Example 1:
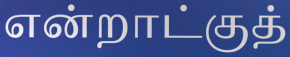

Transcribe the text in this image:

என்றாட்குத்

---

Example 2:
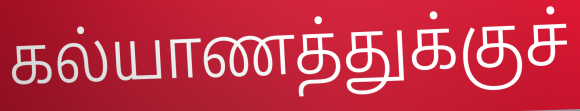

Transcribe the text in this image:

கல்யாணத்துக்குச்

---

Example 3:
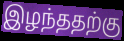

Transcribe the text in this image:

இழந்ததற்கு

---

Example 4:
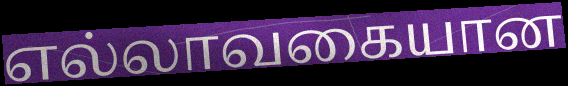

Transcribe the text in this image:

எல்லாவகையான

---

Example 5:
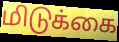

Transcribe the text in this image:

மிடுக்கை